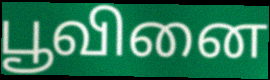
பூவினை